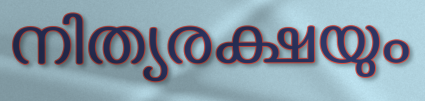
നിത്യരക്ഷയും